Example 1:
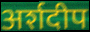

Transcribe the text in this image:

अर्शदीप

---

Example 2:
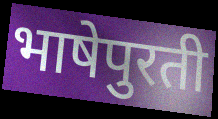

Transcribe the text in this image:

भाषेपुरती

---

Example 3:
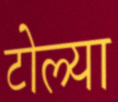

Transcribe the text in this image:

टोल्या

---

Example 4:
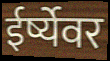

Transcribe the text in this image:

ईर्ष्येवर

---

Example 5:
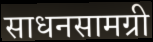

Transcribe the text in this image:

साधनसामग्री